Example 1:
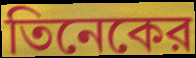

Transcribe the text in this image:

তিনেকের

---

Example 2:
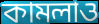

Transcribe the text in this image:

কামলাও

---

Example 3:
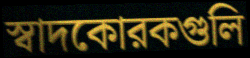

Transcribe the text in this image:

স্বাদকোরকগুলি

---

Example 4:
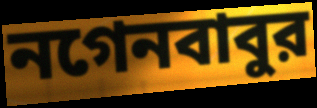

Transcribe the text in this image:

নগেনবাবুর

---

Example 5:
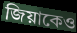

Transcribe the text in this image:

জিয়াকেও